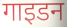
गाइडन